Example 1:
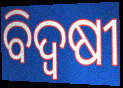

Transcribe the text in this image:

ବିଦ୍ୱଷୀ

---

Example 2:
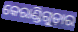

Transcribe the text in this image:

କେରାଣ୍ଡିଗୁଡ଼ାର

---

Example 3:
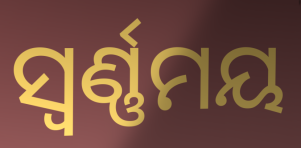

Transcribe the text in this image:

ସ୍ଵର୍ଣ୍ଣମୟ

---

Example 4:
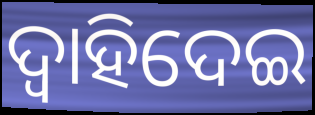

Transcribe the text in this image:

ଦ୍ୱାହିଦେଇ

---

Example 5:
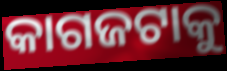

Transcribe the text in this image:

କାଗଜଟାକୁ